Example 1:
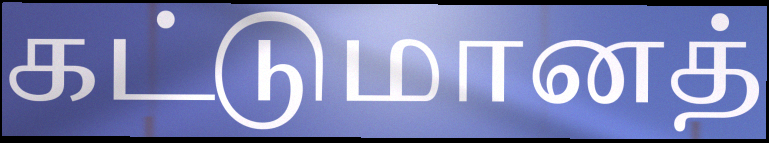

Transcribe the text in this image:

கட்டுமானத்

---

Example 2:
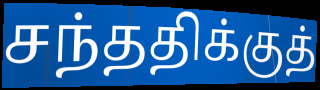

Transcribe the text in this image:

சந்ததிக்குத்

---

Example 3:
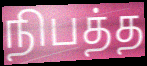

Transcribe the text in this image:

நிபத்த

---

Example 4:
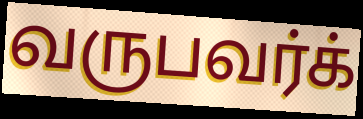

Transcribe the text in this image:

வருபவர்க்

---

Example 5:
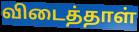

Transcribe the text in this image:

விடைத்தாள்